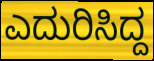
ಎದುರಿಸಿದ್ದ